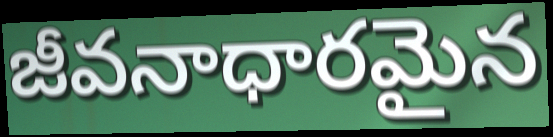
జీవనాధారమైన